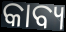
କାବ୍ୟ